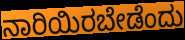
ನಾರಿಯಿರಬೇಡೆಂದು